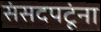
संसदपटूंना